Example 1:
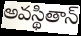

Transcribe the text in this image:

అవస్థితాన్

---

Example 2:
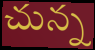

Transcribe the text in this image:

చున్న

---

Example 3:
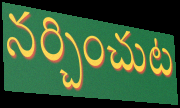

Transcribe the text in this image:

నర్చించుట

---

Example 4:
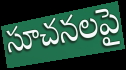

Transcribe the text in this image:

సూచనలపై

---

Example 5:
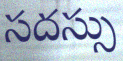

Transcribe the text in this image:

సదస్సు